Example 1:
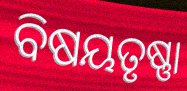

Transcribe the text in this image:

ବିଷୟତୃଷ୍ଣା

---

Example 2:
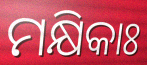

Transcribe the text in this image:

ମକ୍ଷିକାଃ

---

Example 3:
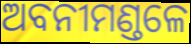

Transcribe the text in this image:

ଅବନୀମଣ୍ଡଳେ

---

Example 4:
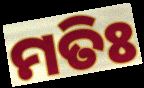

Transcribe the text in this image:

ମତିଃ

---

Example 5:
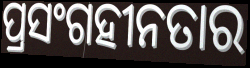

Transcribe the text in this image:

ପ୍ରସଂଗହୀନତାର